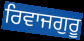
ਰਿਵਾਜਗੁਰੂ